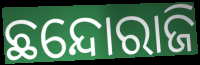
ଛନ୍ଦୋରାଜି